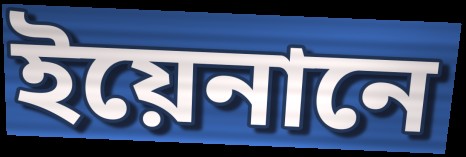
ইয়েনানে